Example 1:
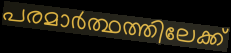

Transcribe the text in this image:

പരമാർത്ഥത്തിലേക്ക്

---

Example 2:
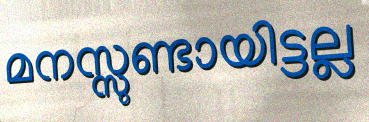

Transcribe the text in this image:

മനസ്സുണ്ടായിട്ടല്ല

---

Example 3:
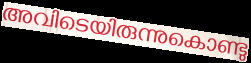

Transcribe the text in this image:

അവിടെയിരുന്നുകൊണ്ടു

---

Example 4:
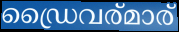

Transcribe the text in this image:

ഡ്രൈവര്മാര്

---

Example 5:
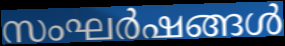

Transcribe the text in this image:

സംഘർഷങ്ങൾ